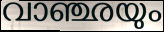
വാഞ്ഛയും